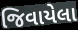
જિવાયેલા